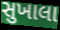
સુખાલા